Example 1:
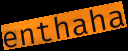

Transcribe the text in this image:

enthaha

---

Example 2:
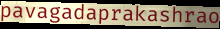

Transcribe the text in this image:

pavagadaprakashrao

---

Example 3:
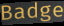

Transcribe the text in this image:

Badge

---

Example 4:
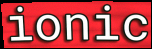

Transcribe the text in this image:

ionic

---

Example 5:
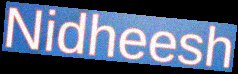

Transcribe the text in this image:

Nidheesh